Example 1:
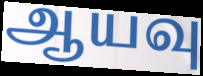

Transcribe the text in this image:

ஆயவு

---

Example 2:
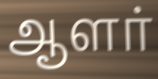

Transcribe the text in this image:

ஆளர்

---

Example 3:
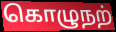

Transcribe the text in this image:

கொழுநற்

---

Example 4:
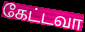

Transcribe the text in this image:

கேட்டவா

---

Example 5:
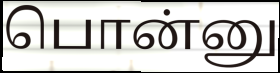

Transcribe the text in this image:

பொன்னு